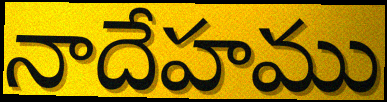
నాదేహము